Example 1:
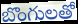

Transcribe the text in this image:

బొంగులతో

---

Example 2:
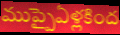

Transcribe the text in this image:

ముప్పైఏళ్లకింద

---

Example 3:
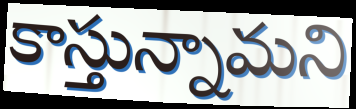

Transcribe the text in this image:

కాస్తున్నామని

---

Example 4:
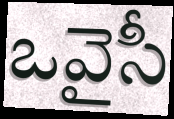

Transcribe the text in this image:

ఒవైసీ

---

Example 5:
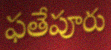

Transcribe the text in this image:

ఫతేపూరు